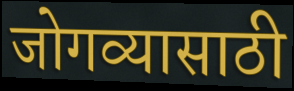
जोगव्यासाठी